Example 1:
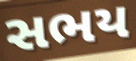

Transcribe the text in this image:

સભય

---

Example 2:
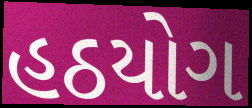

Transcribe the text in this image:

હઠયોગ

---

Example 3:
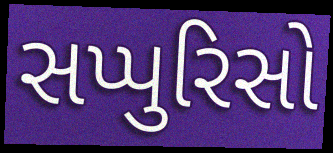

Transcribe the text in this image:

સપ્પુરિસો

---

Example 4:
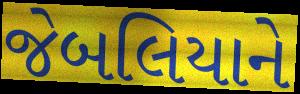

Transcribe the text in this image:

જેબલિયાને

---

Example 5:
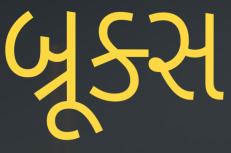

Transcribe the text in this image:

બ્રૂક્સ